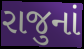
રાજુનાં